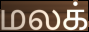
மலக்